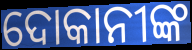
ଦୋକାନୀଙ୍କ